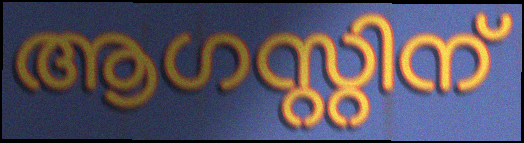
ആഗസ്റ്റിന്